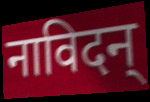
नाविदन्